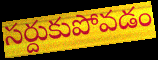
సర్దుకుపోవడం